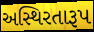
અસ્થિરતારૂપ